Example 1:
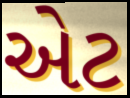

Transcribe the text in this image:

એટ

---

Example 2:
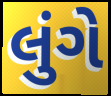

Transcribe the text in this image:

લુંગે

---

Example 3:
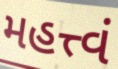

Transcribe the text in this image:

મહત્ત્વં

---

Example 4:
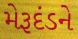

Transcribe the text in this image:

મેરૂદંડને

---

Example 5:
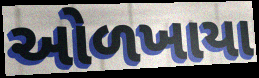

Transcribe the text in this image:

ઓળખાયા